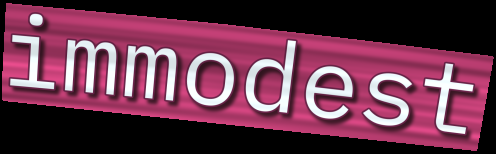
immodest